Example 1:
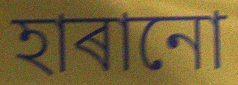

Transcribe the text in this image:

হাৰানো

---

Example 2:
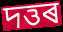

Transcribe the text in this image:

দত্তৰ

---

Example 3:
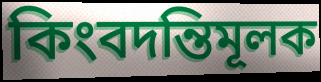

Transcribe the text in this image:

কিংবদন্তিমূলক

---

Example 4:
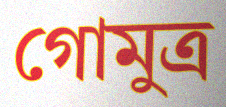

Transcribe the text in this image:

গোমুত্ৰ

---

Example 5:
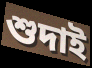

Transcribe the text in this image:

শুদাই